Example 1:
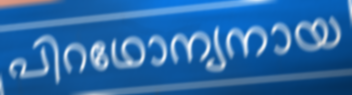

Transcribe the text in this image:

പിറഥോന്യനായ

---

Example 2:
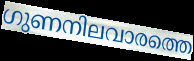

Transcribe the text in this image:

ഗുണനിലവാരത്തെ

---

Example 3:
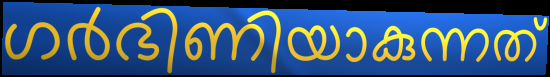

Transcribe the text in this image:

ഗർഭിണിയാകുന്നത്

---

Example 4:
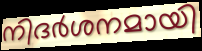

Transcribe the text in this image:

നിദർശനമായി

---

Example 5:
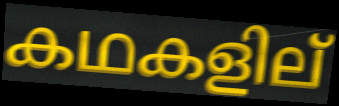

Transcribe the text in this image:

കഥകളില്